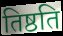
तिष्ठति